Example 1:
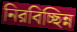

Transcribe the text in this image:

নিরবিচ্ছিন্ন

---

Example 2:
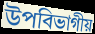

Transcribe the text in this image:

উপবিভাগীয়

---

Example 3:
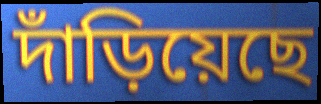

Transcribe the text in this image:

দাঁড়িয়েছে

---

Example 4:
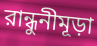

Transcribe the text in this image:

রান্ধুনীমূড়া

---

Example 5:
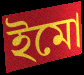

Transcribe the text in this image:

ইমো